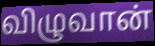
விழுவான்